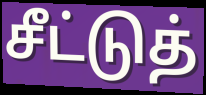
சீட்டுத்